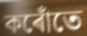
কৰোঁতে